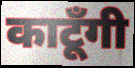
काटूँगी